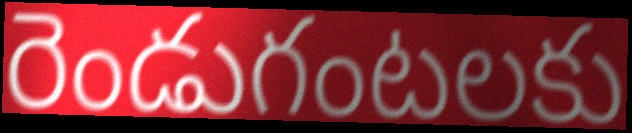
రెండుగంటలకు